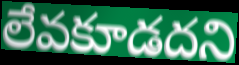
లేవకూడదని